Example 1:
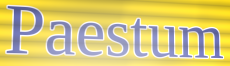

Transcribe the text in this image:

Paestum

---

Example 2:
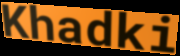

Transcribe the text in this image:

Khadki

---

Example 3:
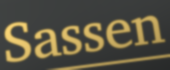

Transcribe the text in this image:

Sassen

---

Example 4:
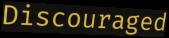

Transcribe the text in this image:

Discouraged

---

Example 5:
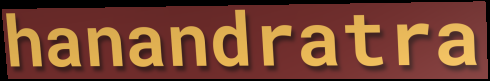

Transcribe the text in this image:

hanandratra